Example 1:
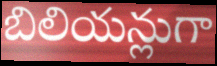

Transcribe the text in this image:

బిలియన్లుగా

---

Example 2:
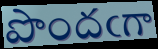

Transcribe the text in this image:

పొందఁగా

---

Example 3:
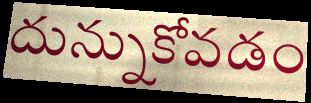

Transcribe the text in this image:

దున్నుకోవడం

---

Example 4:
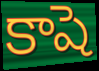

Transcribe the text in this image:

కాషె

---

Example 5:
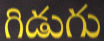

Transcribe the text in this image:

గిడుగు